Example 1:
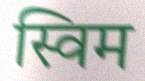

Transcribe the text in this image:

स्विम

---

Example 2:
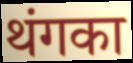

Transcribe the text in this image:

थंगका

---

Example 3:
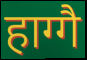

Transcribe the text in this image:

हाग्गै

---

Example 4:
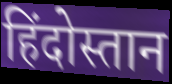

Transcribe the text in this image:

हिंदोस्तान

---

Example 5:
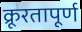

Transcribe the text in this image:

क्रूरतापूर्ण